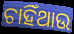
ଚାହିଁଥାଉ